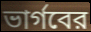
ভার্গবের